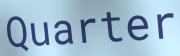
Quarter